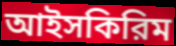
আইসকিরিম